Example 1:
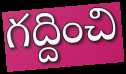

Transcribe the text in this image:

గద్దించి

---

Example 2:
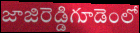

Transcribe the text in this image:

జాజిరెడ్డిగూడెంలో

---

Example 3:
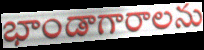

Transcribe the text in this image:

భాండాగారాలను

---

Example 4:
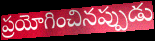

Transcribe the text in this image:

ప్రయోగించినప్పుడు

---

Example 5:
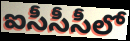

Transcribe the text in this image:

ఐసీసీసీలో